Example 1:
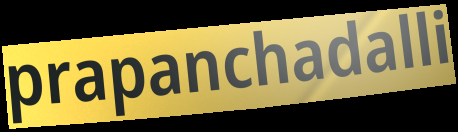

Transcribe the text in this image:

prapanchadalli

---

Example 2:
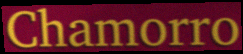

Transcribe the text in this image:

Chamorro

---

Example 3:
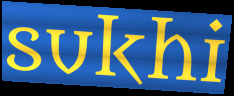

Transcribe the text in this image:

sukhi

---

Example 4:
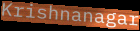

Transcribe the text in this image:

Krishnanagar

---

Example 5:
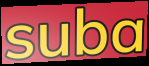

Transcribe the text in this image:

suba